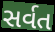
સર્વત